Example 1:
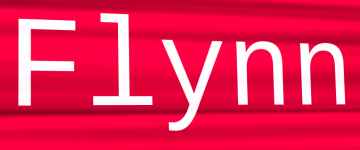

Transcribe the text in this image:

Flynn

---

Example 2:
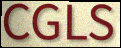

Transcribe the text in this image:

CGLS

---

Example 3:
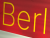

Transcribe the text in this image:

Berl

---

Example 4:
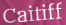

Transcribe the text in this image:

Caitiff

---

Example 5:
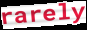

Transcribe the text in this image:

rarely